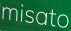
misato